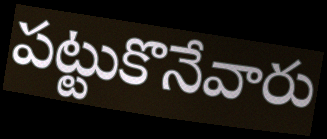
పట్టుకొనేవారు